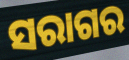
ସରାଗର